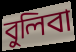
বুলিবা